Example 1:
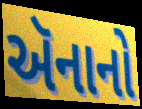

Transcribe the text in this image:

ઍનાનો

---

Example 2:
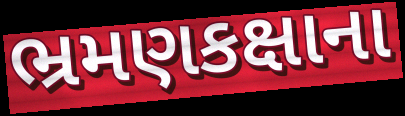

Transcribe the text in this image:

ભ્રમણકક્ષાના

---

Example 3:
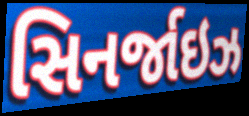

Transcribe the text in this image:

સિનર્જાઇઝ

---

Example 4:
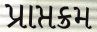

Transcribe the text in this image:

પ્રાપ્તક્રમ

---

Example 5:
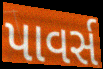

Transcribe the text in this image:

પાવર્સ